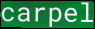
carpel